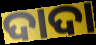
ଦାଦା